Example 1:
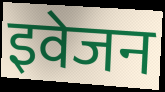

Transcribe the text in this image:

इवेजन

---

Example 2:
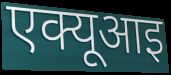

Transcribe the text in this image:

एक्यूआइ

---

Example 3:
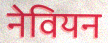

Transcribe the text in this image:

नेवियन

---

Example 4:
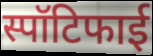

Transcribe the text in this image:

स्पॉटिफाई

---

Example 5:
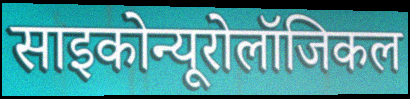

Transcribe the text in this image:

साइकोन्यूरोलॉजिकल